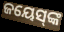
ଜୟେସ୍‌ଙ୍କ